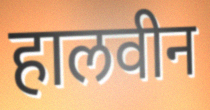
हालवीन